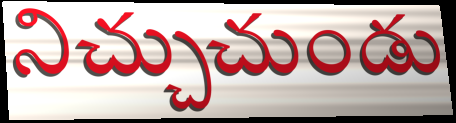
నిచ్చుచుండు